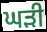
ਘਡ਼ੀ